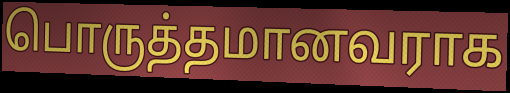
பொருத்தமானவராக